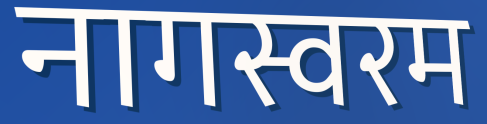
नागस्वरम